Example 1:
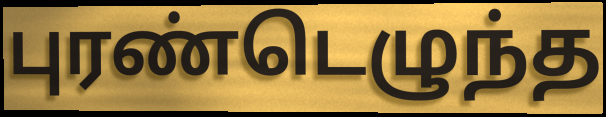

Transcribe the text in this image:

புரண்டெழுந்த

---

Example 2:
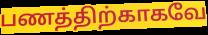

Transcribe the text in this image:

பணத்திற்காகவே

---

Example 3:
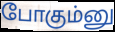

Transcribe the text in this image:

போகும்னு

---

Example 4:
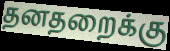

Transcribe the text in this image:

தனதறைக்கு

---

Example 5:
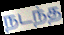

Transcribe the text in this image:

நடந்த